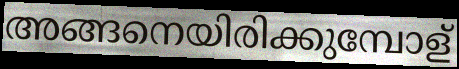
അങ്ങനെയിരിക്കുമ്പോള്